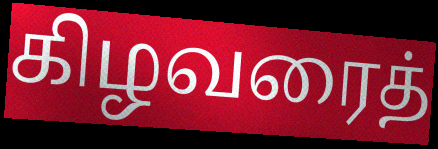
கிழவரைத்